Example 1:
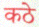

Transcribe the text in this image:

कठे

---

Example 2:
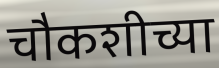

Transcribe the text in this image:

चौकशीच्या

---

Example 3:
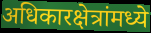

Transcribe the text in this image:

अधिकारक्षेत्रांमध्ये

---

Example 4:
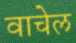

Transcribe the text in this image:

वाचेल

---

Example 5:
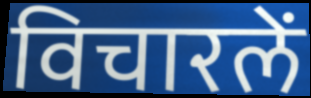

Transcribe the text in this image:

विचारलें